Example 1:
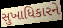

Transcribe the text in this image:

સુખાધિકારને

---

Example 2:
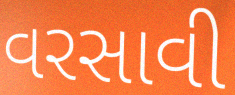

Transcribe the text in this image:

વરસાવી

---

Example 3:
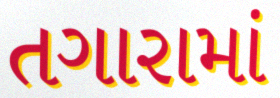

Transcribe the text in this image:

તગારામાં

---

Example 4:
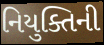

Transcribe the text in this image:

નિયુક્તિની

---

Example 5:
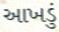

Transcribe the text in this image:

આખડું